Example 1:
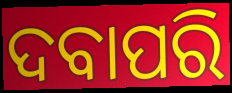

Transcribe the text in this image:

ଦବାପରି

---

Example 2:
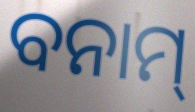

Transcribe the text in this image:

ବନାମ୍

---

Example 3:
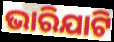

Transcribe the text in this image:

ଭାରିଯାଟି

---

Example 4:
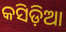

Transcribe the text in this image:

କସିଡ଼ିଆ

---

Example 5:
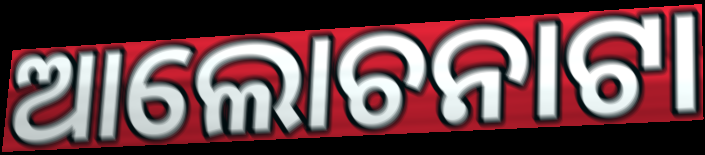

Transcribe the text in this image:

ଆଲୋଚନାଟା